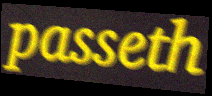
passeth